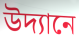
উদ্যানে